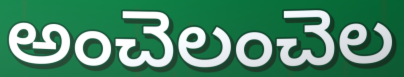
అంచెలంచెల